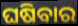
ଘଷିବାର